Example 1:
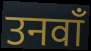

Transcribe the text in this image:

उनवाँ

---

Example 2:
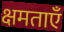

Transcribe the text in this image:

क्षमताएँ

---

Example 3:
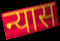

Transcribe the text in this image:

न्यास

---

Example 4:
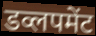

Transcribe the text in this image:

डव्लपमेंट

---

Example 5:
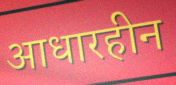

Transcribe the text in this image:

आधारहीन